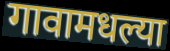
गावामधल्या